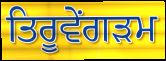
ਤਿਰੂਵੇਂਗੜਮ